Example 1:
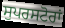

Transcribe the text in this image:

ਸੁਪਰਸਟੋਰਾਂ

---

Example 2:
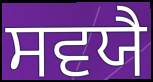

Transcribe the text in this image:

ਸਵਯੈ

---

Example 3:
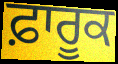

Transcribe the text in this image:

ਫ਼ਾਰੂਕ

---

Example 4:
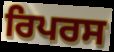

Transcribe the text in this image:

ਰਿਪਰਸ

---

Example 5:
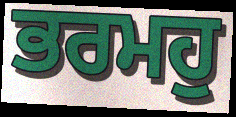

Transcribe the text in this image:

ਭਰਮਹੁ